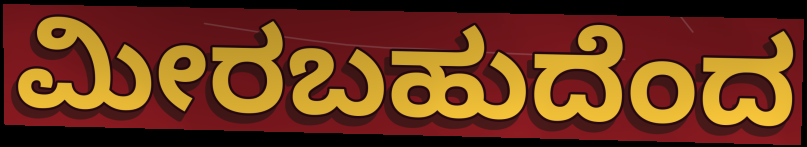
ಮೀರಬಹುದೆಂದ